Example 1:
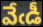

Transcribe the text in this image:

వేఁడీ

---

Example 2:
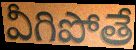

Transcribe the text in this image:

వీగిపోతే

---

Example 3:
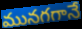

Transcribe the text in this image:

మునగగానే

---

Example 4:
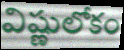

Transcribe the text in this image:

విష్ణులోకం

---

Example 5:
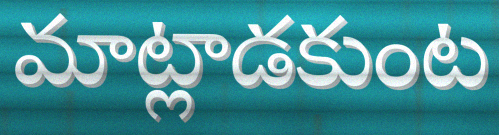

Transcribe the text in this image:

మాట్లాడకుంట